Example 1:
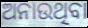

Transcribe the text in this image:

ଅନାଉଥିବା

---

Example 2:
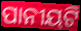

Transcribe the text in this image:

ପାନୀୟଟି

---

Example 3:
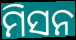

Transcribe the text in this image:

ମିସନ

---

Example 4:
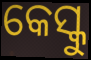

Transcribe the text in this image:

କେସ୍କୁ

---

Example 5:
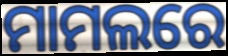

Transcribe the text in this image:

ମାମଲରେ